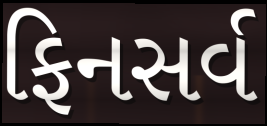
ફિનસર્વ